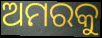
ଅମରକୁ